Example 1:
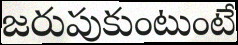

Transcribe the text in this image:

జరుపుకుంటుంటే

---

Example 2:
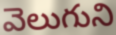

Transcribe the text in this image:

వెలుగుని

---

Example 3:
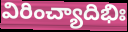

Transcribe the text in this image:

విరించ్యాదిభిః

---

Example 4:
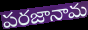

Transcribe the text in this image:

పరజానామ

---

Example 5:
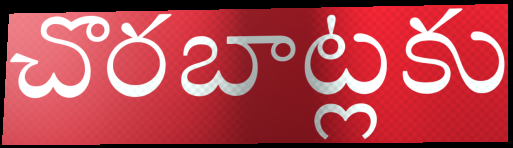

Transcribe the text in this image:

చొరబాట్లకు